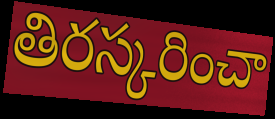
తిరస్కరించా